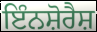
ਇੰਨਸ਼ੋਰੈਸ਼